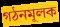
গঠনমূলক